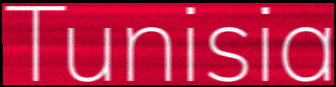
Tunisia